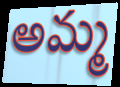
అమ్మ